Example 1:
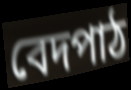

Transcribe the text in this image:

বেদপাঠ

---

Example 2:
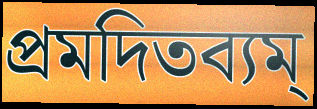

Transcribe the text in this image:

প্রমদিতব্যম্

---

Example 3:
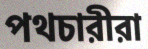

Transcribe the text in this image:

পথচারীরা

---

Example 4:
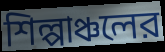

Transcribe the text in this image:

শিল্পাঞ্চলের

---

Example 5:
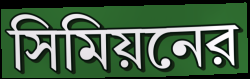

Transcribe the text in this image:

সিমিয়নের